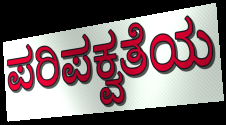
ಪರಿಪಕ್ವತೆಯ